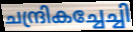
ചന്ദ്രികച്ചേച്ചി